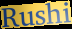
Rushi